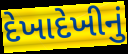
દેખાદેખીનું